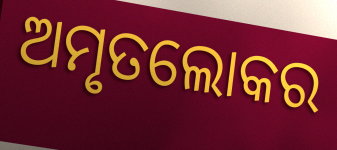
ଅମୃତଲୋକର